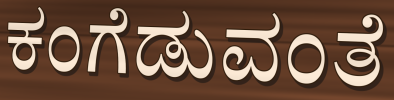
ಕಂಗೆಡುವಂತೆ